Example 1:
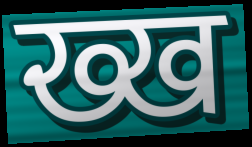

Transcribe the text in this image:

ख्ख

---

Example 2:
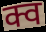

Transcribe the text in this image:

क्व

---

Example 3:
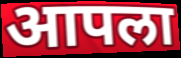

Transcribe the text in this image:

आपला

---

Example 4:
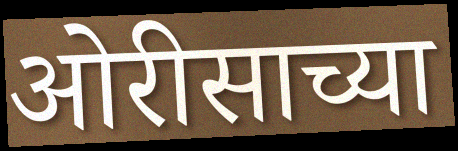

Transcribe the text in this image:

ओरीसाच्या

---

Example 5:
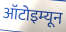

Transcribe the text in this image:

ऑटोइम्यून